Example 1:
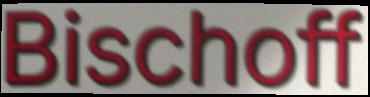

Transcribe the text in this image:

Bischoff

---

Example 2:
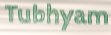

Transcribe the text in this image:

Tubhyam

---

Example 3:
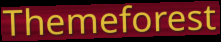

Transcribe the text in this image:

Themeforest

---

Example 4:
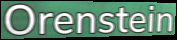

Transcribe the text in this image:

Orenstein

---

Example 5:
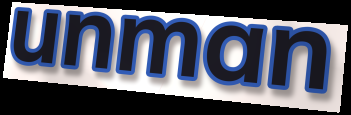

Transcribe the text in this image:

unman